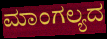
ಮಾಂಗಲ್ಯದ